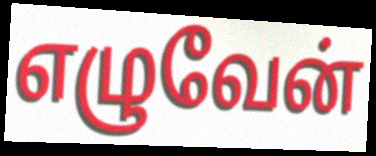
எழுவேன்